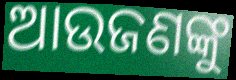
ଆଉଜଣଙ୍କୁ